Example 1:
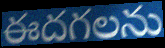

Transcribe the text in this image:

ఈదగలను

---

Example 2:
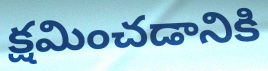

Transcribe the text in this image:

క్షమించడానికి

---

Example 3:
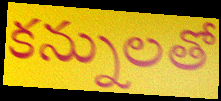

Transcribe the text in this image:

కన్నులతో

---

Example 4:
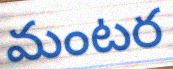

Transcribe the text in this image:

మంటర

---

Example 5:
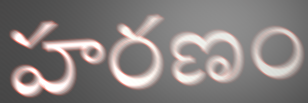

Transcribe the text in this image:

హరణం